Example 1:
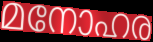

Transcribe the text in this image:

മനോഹര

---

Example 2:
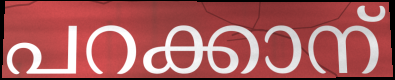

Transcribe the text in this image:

പറക്കാന്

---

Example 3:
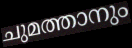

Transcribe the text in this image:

ചുമത്താനും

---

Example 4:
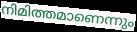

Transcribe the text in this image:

നിമിത്തമാണെന്നും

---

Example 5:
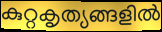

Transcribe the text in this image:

കുറ്റകൃത്യങ്ങളിൽ